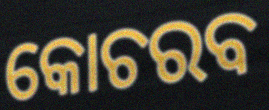
କୋଚରବ